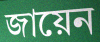
জায়েন